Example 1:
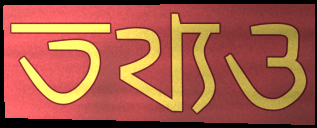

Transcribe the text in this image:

তথ্যও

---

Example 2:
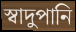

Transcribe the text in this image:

স্বাদুপানি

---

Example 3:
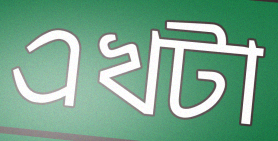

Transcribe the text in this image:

এখটা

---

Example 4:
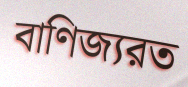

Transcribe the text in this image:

বাণিজ্যরত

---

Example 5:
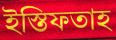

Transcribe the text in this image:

ইস্তিফতাহ